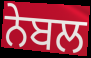
ਨੇਬਲ